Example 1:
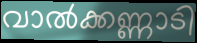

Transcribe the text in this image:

വാൽക്കണ്ണാടി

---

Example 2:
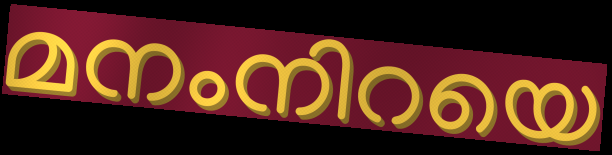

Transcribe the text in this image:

മനംനിറയെ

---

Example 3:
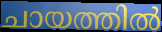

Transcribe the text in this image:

ചായത്തിൽ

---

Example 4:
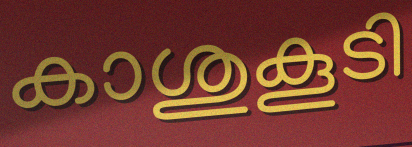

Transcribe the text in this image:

കാശുകൂടി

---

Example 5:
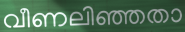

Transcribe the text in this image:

വീണലിഞ്ഞതാ